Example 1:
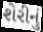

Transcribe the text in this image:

શેરીનું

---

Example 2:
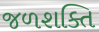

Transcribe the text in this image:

જળશક્તિ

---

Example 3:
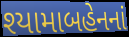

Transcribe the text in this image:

શ્યામાબહેનનાં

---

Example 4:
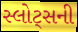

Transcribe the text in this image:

સ્લોટ્સની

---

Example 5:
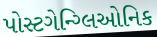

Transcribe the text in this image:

પોસ્ટગેન્ગ્લિઓનિક